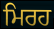
ਮਿਰਹ